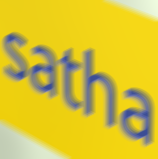
satha